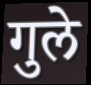
गुले